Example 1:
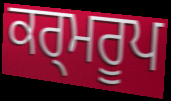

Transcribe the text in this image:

ਕਰ੍ਮਰੂਪ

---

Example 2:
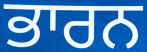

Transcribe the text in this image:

ਭਾਰਨ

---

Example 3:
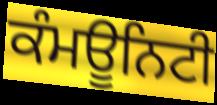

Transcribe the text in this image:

ਕੰਮਊਨਿਟੀ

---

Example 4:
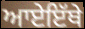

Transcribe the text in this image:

ਆਏਇੱਥੇ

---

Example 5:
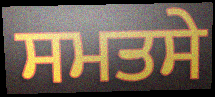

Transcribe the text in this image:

ਸਮਤਸੇ